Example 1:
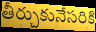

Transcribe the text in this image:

తీర్చుకునేసరికి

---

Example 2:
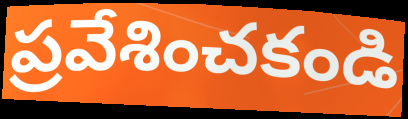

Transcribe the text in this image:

ప్రవేశించకండి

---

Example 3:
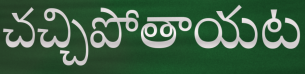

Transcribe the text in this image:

చచ్చిపోతాయట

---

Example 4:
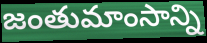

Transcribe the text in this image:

జంతుమాంసాన్ని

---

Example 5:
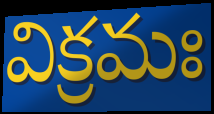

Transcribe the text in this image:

విక్రమః